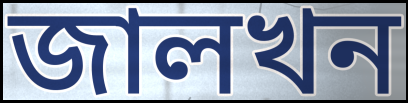
জালখন